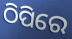
ଠିପିରେ